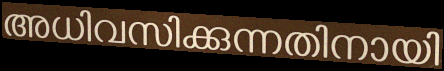
അധിവസിക്കുന്നതിനായി